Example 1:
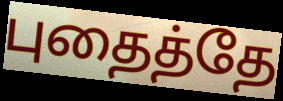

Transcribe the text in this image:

புதைத்தே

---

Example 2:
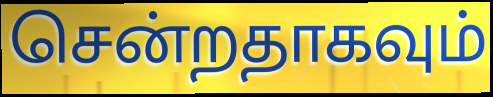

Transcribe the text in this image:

சென்றதாகவும்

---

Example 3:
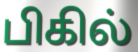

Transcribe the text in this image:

பிகில்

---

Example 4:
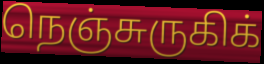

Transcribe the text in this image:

நெஞ்சுருகிக்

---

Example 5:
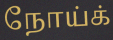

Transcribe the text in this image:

நோய்க்